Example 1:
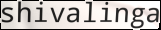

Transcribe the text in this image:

shivalinga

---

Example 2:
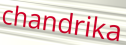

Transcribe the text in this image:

chandrika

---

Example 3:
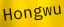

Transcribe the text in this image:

Hongwu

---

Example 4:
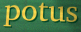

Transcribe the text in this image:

potus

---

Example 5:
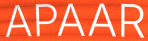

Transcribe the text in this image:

APAAR